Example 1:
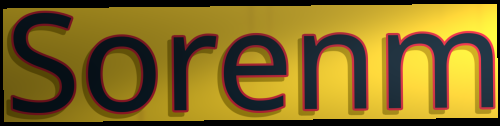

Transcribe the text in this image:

Sorenm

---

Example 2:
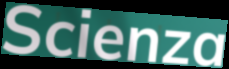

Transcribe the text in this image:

Scienza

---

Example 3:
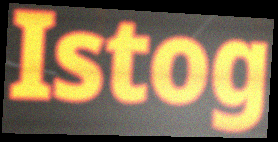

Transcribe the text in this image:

Istog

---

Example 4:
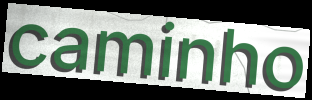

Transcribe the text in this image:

caminho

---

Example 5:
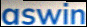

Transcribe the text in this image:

aswin